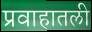
प्रवाहातली